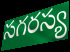
సగరస్య